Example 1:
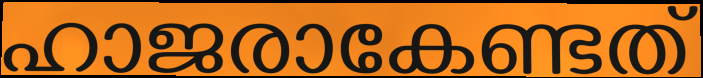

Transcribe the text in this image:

ഹാജരാകേണ്ടത്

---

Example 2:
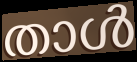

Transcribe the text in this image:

താൾ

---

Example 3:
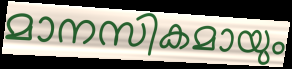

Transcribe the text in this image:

മാനസികമായും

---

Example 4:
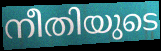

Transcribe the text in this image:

നീതിയുടെ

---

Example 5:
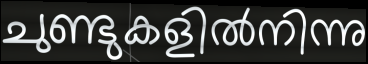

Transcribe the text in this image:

ചുണ്ടുകളിൽനിന്നു